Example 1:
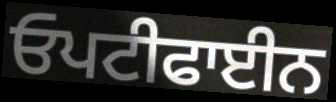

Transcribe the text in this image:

ਓਪਟੀਫਾਈਨ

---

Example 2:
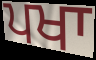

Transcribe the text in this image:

ਪਖਾ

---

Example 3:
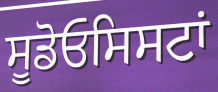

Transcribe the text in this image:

ਸੂਡੋਓਸਿਸਟਾਂ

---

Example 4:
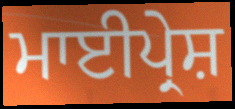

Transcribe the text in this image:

ਮਾਈਪ੍ਰੇਸ਼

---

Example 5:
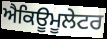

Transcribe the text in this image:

ਐਕਿਊਮੂਲੇਟਰ